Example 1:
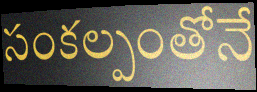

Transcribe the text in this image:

సంకల్పంతోనే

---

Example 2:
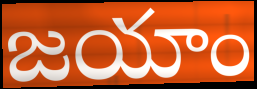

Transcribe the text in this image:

జయాం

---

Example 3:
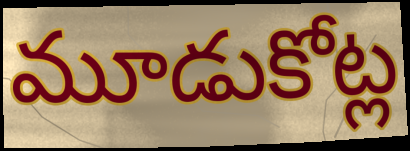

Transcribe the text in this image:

మూడుకోట్ల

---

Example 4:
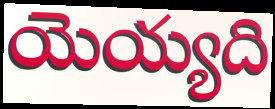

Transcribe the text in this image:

యెయ్యది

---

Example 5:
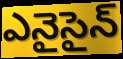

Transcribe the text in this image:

ఎనైసైన్